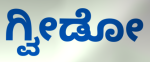
ಗ್ವೀಡೋ